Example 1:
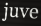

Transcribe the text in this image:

juve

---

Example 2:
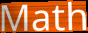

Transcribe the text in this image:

Math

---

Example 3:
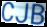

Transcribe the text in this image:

CJB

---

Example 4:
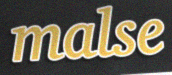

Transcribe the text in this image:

malse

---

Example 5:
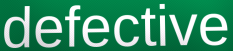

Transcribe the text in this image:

defective